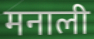
मनाली